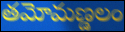
తమోమణ్డలం